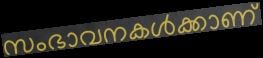
സംഭാവനകൾക്കാണ്